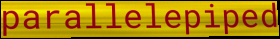
parallelepiped